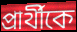
প্রার্থীকে